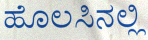
ಹೊಲಸಿನಲ್ಲಿ